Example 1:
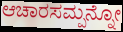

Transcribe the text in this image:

ಆಚಾರಸಮ್ಪನ್ನೋ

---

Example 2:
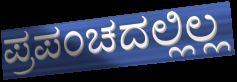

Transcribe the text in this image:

ಪ್ರಪಂಚದಲ್ಲಿಲ್ಲ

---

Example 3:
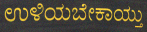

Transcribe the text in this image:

ಉಳಿಯಬೇಕಾಯ್ತು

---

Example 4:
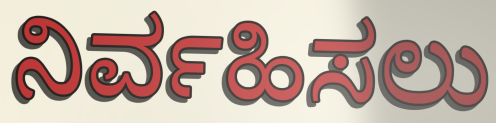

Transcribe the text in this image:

ನಿರ್ವಹಿಸಲು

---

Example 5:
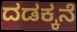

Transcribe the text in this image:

ದಡಕ್ಕನೆ